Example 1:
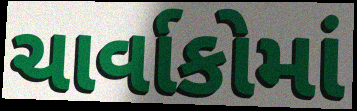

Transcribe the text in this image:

ચાર્વાકોમાં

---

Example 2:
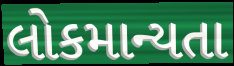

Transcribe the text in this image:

લોકમાન્યતા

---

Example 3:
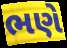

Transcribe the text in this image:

ભણે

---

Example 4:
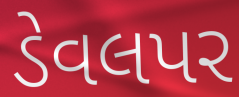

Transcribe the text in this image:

ડેવલપર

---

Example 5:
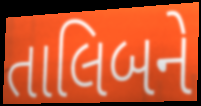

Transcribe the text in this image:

તાલિબને